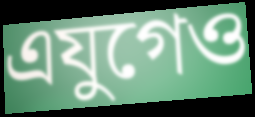
এযুগেও